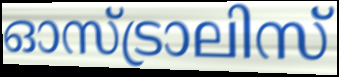
ഓസ്ട്രാലിസ്